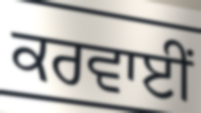
ਕਰਵਾਈਂ